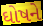
ઘોષને